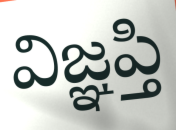
విజ్ఞప్తి